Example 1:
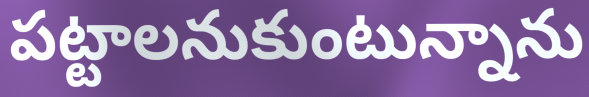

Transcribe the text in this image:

పట్టాలనుకుంటున్నాను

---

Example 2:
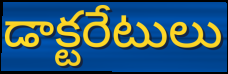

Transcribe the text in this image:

డాక్టరేటులు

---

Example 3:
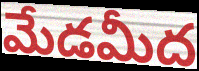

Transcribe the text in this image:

మేడమీద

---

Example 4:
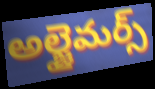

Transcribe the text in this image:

అల్జైమర్స్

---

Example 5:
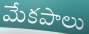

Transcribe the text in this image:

మేకపాలు